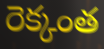
రెక్కంత